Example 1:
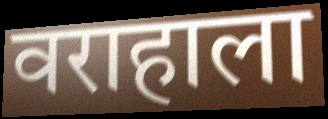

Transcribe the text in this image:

वराहाला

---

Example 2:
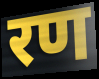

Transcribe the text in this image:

रण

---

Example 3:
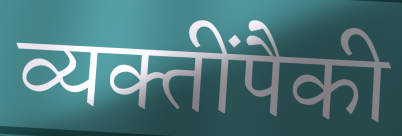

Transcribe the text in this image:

व्यक्‍तींपैकी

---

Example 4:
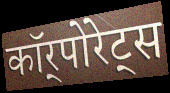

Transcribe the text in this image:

कॉर्पोरेट्‌स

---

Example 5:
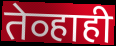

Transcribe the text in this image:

तेव्हाही